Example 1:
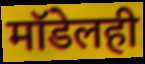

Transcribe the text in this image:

मॉडेलही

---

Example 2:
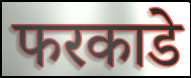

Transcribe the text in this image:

फरकाडे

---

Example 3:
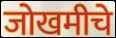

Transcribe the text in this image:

जोखमीचे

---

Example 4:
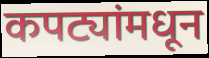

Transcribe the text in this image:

कपट्यांमधून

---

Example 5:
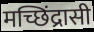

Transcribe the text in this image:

मच्छिंद्रासी